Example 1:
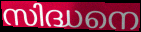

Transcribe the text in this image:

സിദ്ധനെ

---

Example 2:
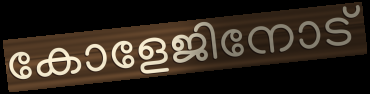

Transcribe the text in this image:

കോളേജിനോട്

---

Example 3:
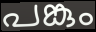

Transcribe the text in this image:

പങ്കും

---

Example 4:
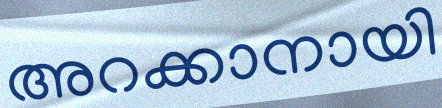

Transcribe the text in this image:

അറക്കാനായി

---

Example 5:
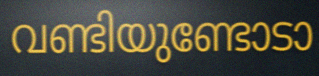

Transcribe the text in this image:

വണ്ടിയുണ്ടോടാ